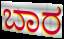
ಬಾರ